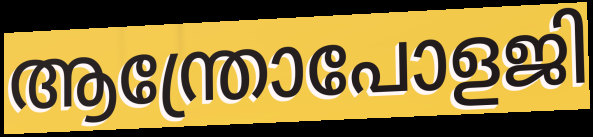
ആന്ത്രോപോളജി